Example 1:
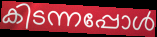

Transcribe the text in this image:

കിടന്നപ്പോൾ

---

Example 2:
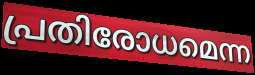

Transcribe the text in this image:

പ്രതിരോധമെന്ന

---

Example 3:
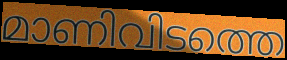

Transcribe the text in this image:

മാണിവിടത്തെ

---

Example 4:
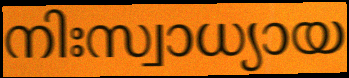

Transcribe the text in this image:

നിഃസ്വാധ്യായ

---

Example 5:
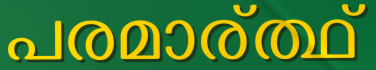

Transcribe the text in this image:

പരമാര്ത്ഥ്